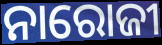
ନାରୋଜୀ